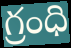
గ్రంధి